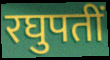
रघुपतीं